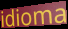
idioma